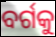
ବର୍ଗକୁ